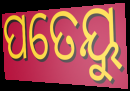
ପତେୟୁ